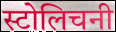
स्टोलिचनी